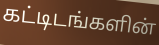
கட்டிடங்களின்